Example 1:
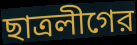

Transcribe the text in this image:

ছাত্রলীগের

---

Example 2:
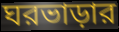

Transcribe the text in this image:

ঘরভাড়ার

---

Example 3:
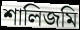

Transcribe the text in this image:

শালিজমি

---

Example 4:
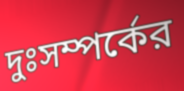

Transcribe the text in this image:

দুঃসম্পর্কের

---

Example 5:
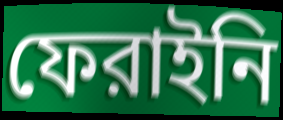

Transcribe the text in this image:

ফেরাইনি